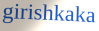
girishkaka